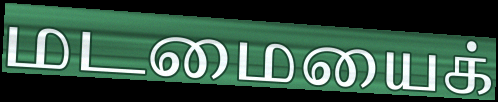
மடமையைக்